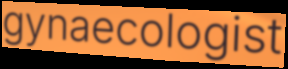
gynaecologist